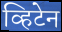
व्हिटेन